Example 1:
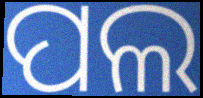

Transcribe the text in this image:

ପଲ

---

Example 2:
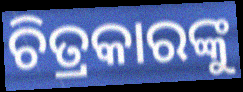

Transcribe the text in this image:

ଚିତ୍ରକାରଙ୍କୁ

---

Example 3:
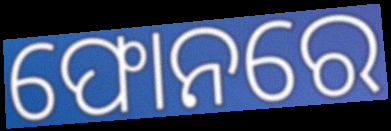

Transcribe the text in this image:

ଫୋନରେ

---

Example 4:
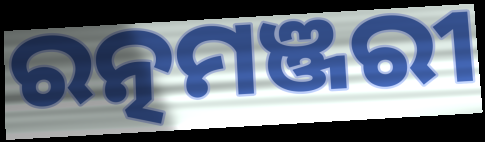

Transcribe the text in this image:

ରତ୍ନମଞ୍ଜରୀ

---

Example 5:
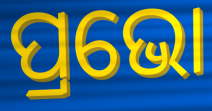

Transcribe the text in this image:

ପ୍ରଭୋ